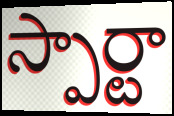
స్పార్టా